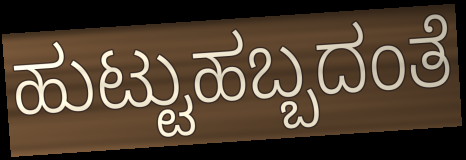
ಹುಟ್ಟುಹಬ್ಬದಂತೆ